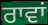
ਰਾਵਾਂ